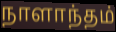
நாளாந்தம்